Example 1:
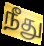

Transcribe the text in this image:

நீது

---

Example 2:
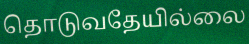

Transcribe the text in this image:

தொடுவதேயில்லை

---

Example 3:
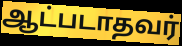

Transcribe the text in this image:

ஆட்படாதவர்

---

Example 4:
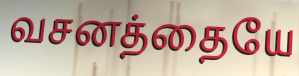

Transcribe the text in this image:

வசனத்தையே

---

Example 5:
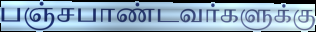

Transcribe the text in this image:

பஞ்சபாண்டவர்களுக்கு